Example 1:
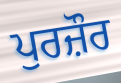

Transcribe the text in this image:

ਪੁਰਜ਼ੌਰ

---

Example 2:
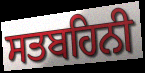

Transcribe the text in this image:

ਸਤਬਹਿਨੀ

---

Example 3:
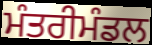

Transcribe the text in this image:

ਮੰਤਰੀਮੰਡਲ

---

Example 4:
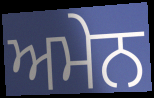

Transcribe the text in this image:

ਅਮੇਨ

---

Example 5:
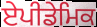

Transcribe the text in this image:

ਏਪੀਡੇਮਿਕ